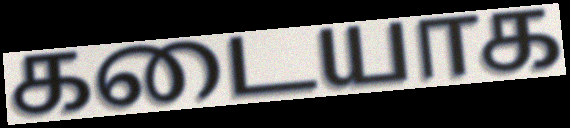
கடையாக